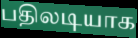
பதிலடியாக